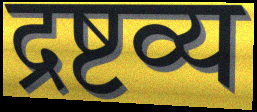
द्रष्टव्य